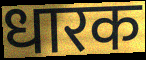
धारक